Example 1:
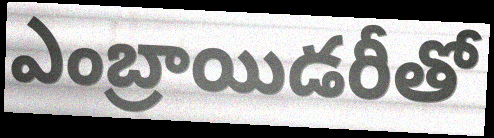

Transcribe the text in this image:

ఎంబ్రాయిడరీతో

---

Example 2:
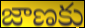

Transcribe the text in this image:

జాణకు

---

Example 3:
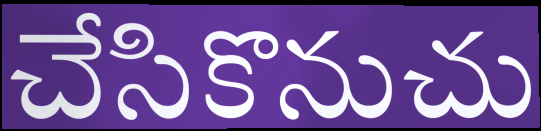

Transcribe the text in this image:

చేసికొనుచు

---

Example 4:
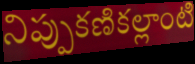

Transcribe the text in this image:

నిప్పుకణికల్లాంటి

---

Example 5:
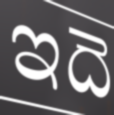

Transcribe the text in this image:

ఇదె